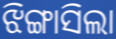
ଝିଙ୍ଗାସିଲା